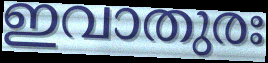
ഇവാതുരഃ